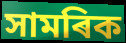
সামৰিক